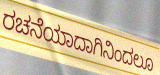
ರಚನೆಯಾದಾಗಿನಿಂದಲೂ